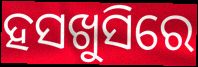
ହସଖୁସିରେ